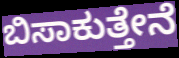
ಬಿಸಾಕುತ್ತೇನೆ